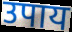
उपाय